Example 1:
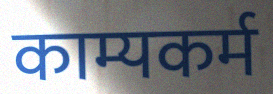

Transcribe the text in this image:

काम्यकर्म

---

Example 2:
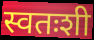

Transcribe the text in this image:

स्वतःशी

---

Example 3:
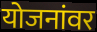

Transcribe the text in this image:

योजनांवर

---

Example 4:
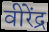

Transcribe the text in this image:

वीरेंद्र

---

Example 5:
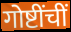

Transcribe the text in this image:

गोष्टींचीं